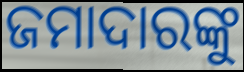
ଜମାଦାରଙ୍କୁ